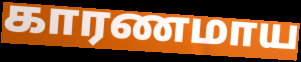
காரணமாய